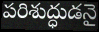
పరిశుద్ధుడనై